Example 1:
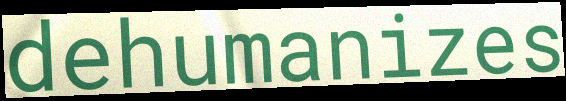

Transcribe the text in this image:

dehumanizes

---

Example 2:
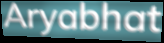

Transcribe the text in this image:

Aryabhat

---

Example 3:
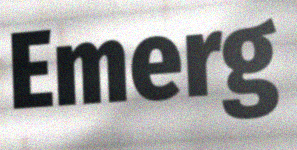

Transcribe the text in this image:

Emerg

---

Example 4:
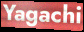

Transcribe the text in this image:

Yagachi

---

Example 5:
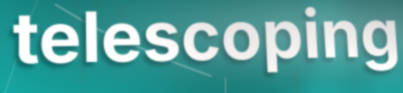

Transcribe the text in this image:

telescoping